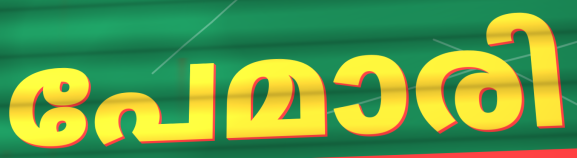
പേമാരി